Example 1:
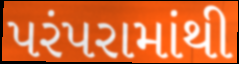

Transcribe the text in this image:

પરંપરામાંથી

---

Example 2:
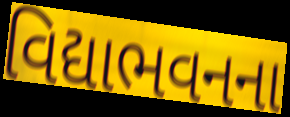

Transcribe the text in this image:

વિદ્યાભવનના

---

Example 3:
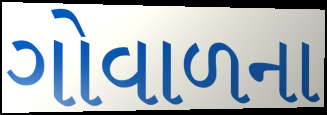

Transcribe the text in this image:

ગોવાળના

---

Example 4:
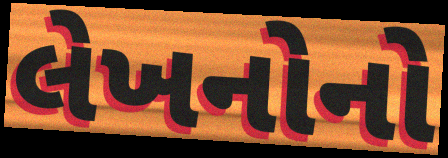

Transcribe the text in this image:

લેખનોનો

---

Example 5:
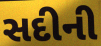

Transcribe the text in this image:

સદીની